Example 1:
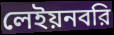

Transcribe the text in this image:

লেইয়নবরি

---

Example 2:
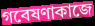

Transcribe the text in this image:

গবেষণাকাজে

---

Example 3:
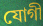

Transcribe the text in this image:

যোগী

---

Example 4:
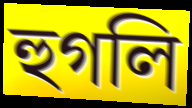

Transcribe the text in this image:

হুগলি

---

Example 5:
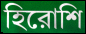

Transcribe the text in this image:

হিরোশি